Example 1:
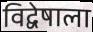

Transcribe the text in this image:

विद्वेषाला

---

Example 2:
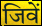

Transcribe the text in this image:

जिवें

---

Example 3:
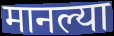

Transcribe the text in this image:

मानल्या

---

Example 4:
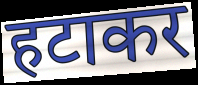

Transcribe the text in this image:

हटाकर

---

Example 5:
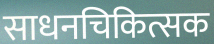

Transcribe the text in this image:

साधनचिकित्सक